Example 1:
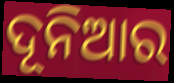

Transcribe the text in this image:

ଦୂନିଆର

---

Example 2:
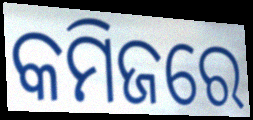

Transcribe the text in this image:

କମିଜରେ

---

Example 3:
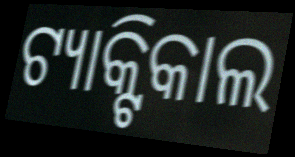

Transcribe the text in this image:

ଟ୍ୟାକ୍ଟିକାଲ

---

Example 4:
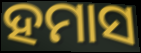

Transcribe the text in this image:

ହମାସ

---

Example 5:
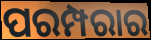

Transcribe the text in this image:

ପରମ୍ପରାର